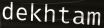
dekhtam